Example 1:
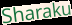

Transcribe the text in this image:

Sharaku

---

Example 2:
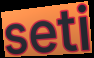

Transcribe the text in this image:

seti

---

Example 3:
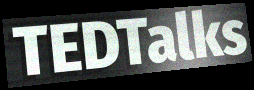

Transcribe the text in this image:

TEDTalks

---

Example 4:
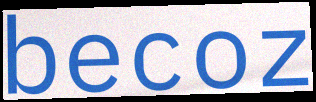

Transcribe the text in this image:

becoz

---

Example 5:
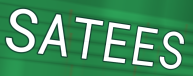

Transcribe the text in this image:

SATEES